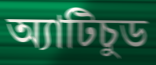
অ্যাটিচুড